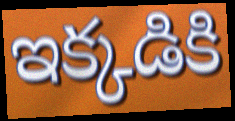
ఇక్కడికి